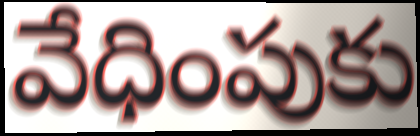
వేధింపుకు